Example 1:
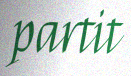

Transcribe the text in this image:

partit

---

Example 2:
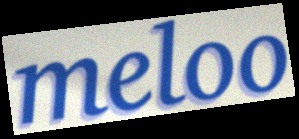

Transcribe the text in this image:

meloo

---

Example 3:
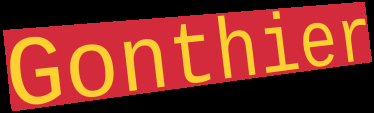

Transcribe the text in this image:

Gonthier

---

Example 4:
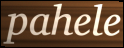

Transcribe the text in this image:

pahele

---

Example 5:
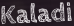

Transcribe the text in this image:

Kaladi